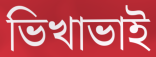
ভিখাভাই